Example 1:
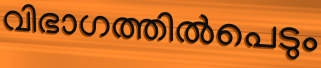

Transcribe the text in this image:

വിഭാഗത്തിൽപെടും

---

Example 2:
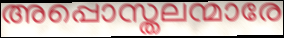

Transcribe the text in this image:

അപ്പൊസ്തലന്മാരേ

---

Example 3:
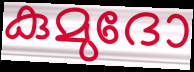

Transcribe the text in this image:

കുമുദോ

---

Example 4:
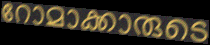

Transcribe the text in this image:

റോമാക്കാരുടെ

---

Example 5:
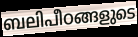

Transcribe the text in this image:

ബലിപീഠങ്ങളുടെ